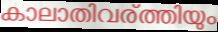
കാലാതിവര്ത്തിയും